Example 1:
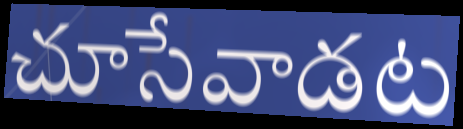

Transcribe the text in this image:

చూసేవాడట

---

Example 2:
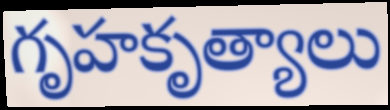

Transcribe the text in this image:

గృహకృత్యాలు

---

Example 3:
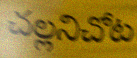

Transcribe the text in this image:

చల్లనిచోట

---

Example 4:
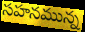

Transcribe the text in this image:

సహనమున్న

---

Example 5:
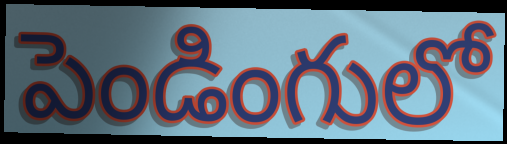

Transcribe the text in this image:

పెండింగులో